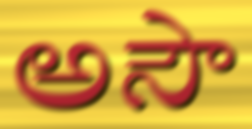
అసౌ